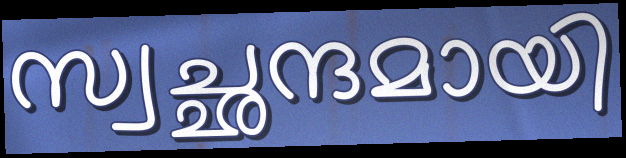
സ്വച്ഛന്ദമായി